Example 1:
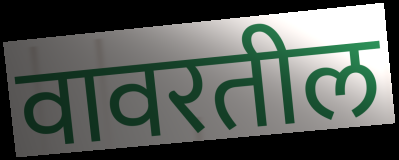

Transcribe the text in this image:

वावरतील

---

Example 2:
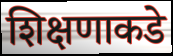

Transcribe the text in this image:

शिक्षणाकडे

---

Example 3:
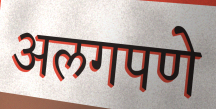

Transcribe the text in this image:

अलगपणे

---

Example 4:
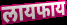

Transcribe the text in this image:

लायफाय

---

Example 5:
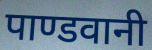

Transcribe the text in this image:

पाण्डवानी